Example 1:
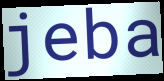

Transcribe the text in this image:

jeba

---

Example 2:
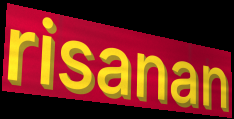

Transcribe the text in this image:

risanan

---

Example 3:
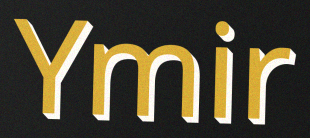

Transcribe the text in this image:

Ymir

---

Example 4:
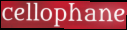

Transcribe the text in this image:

cellophane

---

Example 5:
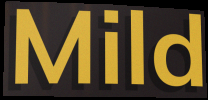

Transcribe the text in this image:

Mild